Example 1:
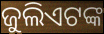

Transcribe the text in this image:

ଜୁଲିଏଟଙ୍କ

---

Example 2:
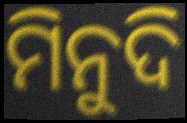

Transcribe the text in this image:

ମିନୁଦି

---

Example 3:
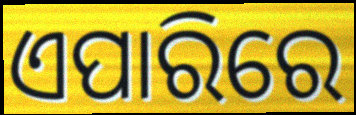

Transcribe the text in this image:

ଏପାରିରେ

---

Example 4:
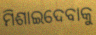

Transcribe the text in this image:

ମିଶାଇଦେବାକୁ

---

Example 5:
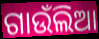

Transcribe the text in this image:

ଗାଉଁଲିଆ